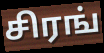
சிரங்